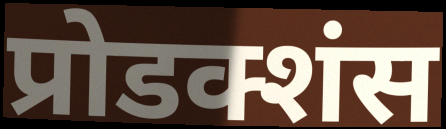
प्रोडक्शंस